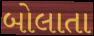
બોલાતા